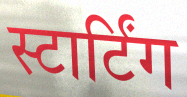
स्टार्टिंग